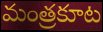
మంత్రకూట